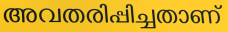
അവതരിപ്പിച്ചതാണ്